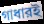
গাধারই